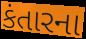
કંતારના